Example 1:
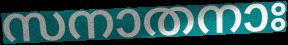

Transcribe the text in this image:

സനാതനാഃ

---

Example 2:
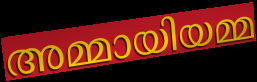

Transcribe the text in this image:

അമ്മായിയമ്മ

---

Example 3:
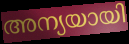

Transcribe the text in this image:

അന്യയായി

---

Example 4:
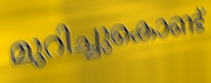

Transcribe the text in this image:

മുറിച്ചുകൊണ്ട്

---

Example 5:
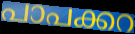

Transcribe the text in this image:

പാപക്കറ